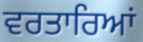
ਵਰਤਾਰਿਆਂ